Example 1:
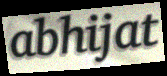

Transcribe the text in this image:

abhijat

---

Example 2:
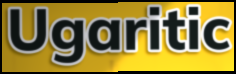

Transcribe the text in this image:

Ugaritic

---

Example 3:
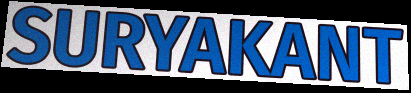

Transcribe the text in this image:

SURYAKANT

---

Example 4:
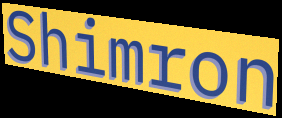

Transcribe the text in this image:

Shimron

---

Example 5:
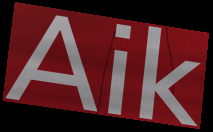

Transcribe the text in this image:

Aik